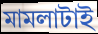
মামলাটাই